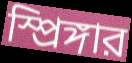
স্প্রিঙ্গার